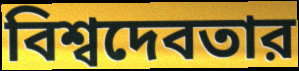
বিশ্বদেবতার